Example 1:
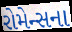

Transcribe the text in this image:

રોમેન્સના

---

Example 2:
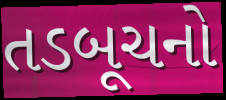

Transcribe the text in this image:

તડબૂચનો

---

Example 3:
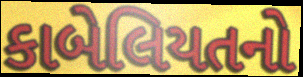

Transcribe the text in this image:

કાબેલિયતનો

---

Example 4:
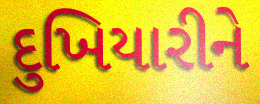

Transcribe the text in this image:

દુખિયારીને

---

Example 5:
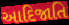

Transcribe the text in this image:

આદિજાતિ